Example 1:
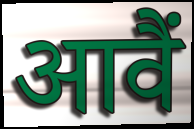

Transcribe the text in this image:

आवैं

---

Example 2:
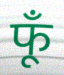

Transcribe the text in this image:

फूँ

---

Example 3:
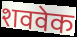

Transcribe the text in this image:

शववेक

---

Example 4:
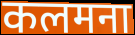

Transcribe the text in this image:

कलमना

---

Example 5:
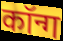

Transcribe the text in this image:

कॉन्ग